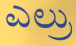
ಎಲ್ರು